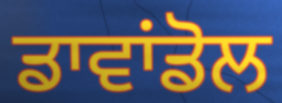
ਡਾਵਾਂਡੋਲ